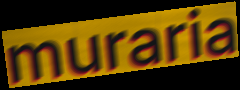
muraria